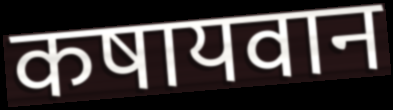
कषायवान